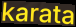
karata